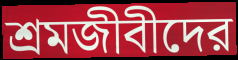
শ্রমজীবীদের